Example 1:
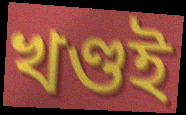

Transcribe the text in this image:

খণ্ডই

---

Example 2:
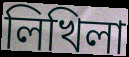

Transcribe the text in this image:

লিখিলা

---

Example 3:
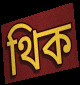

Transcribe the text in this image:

থিক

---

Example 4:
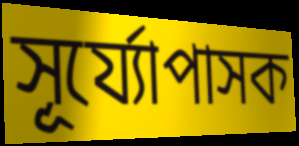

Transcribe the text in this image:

সূৰ্য্যোপাসক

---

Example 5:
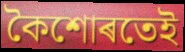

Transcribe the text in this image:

কৈশোৰতেই